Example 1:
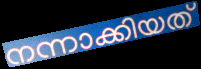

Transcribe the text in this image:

നന്നാക്കിയത്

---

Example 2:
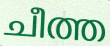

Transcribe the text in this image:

ചീത്ത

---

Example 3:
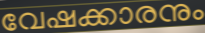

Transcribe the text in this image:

വേഷക്കാരനും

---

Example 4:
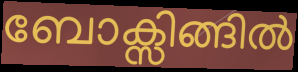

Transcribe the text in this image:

ബോക്സിങ്ങിൽ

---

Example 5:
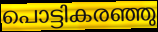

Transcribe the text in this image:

പൊട്ടികരഞ്ഞു